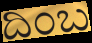
ದಿಂಬ